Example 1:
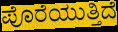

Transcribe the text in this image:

ಪೊರೆಯುತ್ತಿದೆ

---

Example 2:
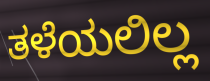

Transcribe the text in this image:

ತಳೆಯಲಿಲ್ಲ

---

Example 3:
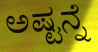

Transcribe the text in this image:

ಅಷ್ಟನ್ನೆ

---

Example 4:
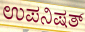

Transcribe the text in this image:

ಉಪನಿಷತ್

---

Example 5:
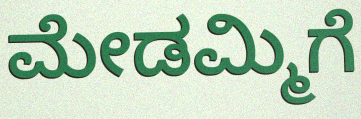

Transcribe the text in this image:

ಮೇಡಮ್ಮಿಗೆ